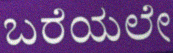
ಬರೆಯಲೇ